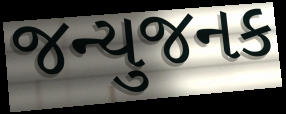
જન્યુજનક